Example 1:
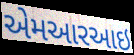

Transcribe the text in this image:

એમઆરઆઇ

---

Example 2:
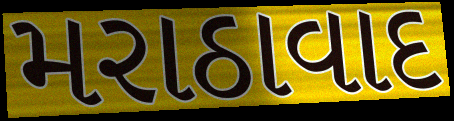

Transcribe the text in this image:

મરાઠાવાદ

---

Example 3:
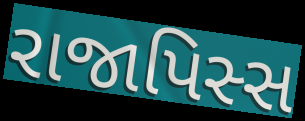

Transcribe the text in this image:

રાજાપિસ્સ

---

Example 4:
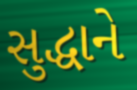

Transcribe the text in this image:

સુદ્ધાને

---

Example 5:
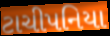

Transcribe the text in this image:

ટાચીપનિયા